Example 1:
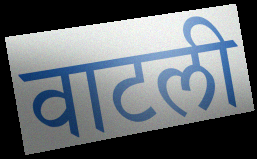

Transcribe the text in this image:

वाटली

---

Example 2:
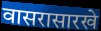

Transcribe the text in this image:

वासरासारखे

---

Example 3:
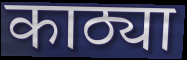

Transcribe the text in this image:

काठ्या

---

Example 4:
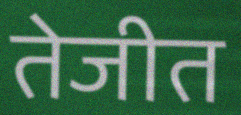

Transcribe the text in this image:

तेजीत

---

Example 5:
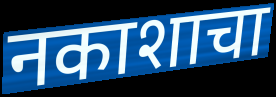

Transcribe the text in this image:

नकाशाचा